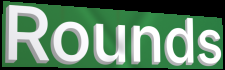
Rounds